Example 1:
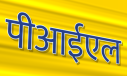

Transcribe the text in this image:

पीआईएल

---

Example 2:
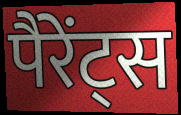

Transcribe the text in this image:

पैरेंट्स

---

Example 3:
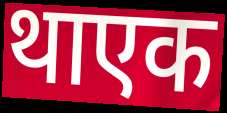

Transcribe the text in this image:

थाएक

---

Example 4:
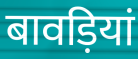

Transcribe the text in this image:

बावड़ियां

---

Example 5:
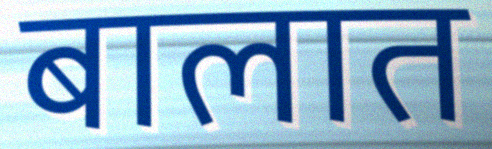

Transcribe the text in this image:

बालात